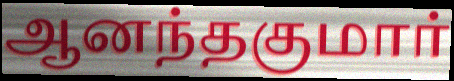
ஆனந்தகுமார்